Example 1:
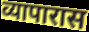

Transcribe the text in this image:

व्यापारास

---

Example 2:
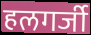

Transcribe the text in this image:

हलगर्जी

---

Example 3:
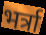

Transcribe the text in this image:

भर्त्रा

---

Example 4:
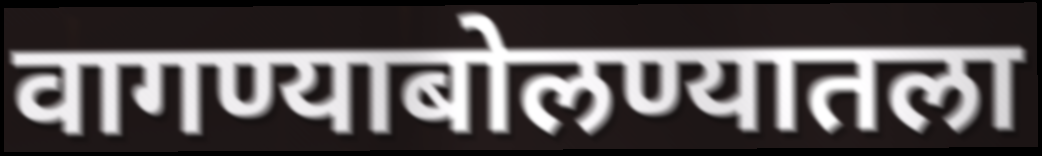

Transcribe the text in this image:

वागण्याबोलण्यातला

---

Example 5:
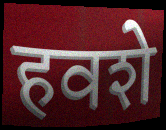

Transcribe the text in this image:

हवशे